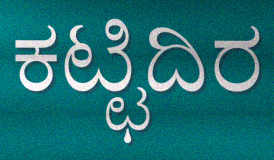
ಕಟ್ಟಿದಿರ